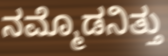
ನಮ್ಮೊಡನಿತ್ತು